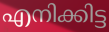
എനിക്കിട്ട